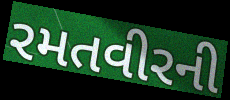
રમતવીરની